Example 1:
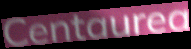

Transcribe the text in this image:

Centaurea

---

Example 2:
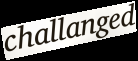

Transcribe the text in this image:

challanged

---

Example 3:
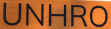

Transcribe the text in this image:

UNHRO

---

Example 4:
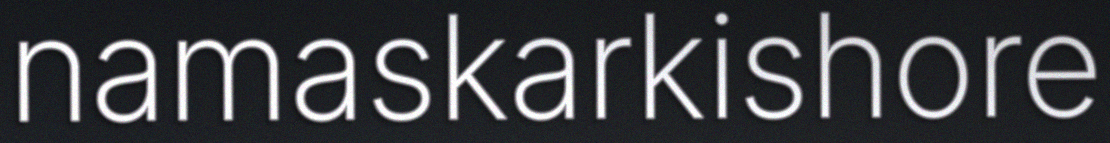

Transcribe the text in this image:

namaskarkishore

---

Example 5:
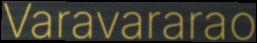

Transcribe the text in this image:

Varavararao